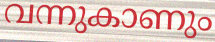
വന്നുകാണും